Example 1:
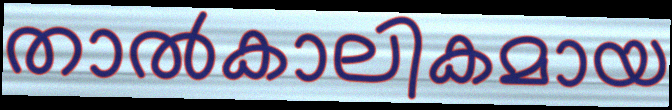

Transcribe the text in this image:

താൽകാലികമായ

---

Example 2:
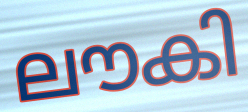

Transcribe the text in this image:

ലൗകി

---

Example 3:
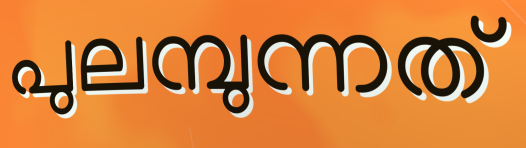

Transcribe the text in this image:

പുലമ്പുന്നത്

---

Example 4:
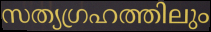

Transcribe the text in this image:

സത്യഗ്രഹത്തിലും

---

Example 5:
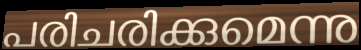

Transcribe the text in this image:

പരിചരിക്കുമെന്നു